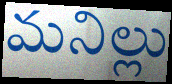
మనిల్లు